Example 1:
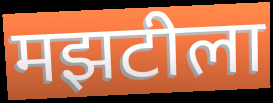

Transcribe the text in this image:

मझटीला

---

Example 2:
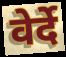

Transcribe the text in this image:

वेर्दे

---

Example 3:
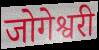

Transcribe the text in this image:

जोगेश्वरी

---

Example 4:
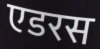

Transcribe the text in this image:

एडरस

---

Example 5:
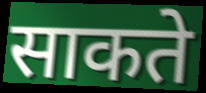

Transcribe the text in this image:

साकते